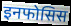
इनफोसिस